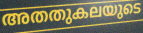
അതതുകലയുടെ